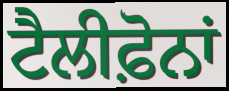
ਟੈਲੀਫ਼ੋਨਾਂ